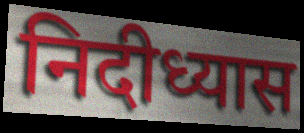
निदीध्यास